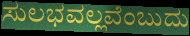
ಸುಲಭವಲ್ಲವೆಂಬುದು